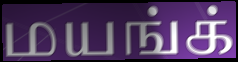
மயங்க்